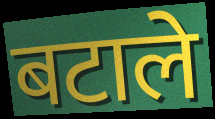
बटाले